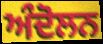
ਅੰਦੋਲਨ